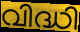
വിദ്ധി